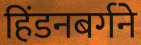
हिंडनबर्गने